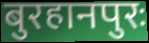
बुरहानपुरः